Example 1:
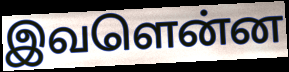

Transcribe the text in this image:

இவளென்ன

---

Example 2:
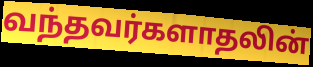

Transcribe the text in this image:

வந்தவர்களாதலின்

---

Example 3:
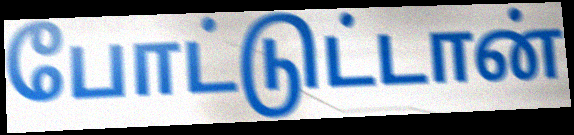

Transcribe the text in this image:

போட்டுட்டான்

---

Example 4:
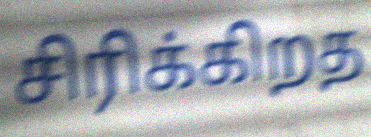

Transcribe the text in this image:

சிரிக்கிறத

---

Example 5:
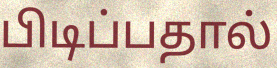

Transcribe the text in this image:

பிடிப்பதால்